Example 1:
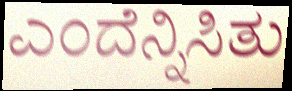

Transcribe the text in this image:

ಎಂದೆನ್ನಿಸಿತು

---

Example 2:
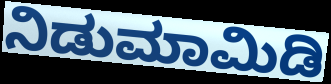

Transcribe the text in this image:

ನಿಡುಮಾಮಿಡಿ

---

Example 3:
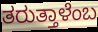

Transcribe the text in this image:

ತರುತ್ತಾಳೆಂಬ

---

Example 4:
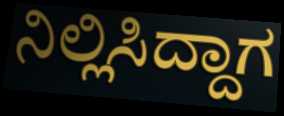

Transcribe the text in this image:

ನಿಲ್ಲಿಸಿದ್ದಾಗ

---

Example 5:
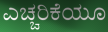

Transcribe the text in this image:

ಎಚ್ಚರಿಕೆಯೂ